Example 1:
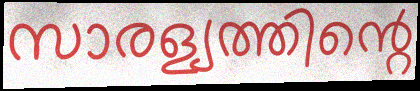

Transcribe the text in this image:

സാരള്യത്തിന്റെ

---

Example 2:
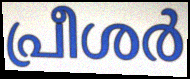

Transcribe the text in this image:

പ്രീശർ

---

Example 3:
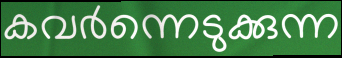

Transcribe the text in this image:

കവർന്നെടുക്കുന്ന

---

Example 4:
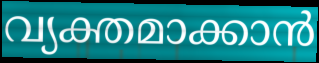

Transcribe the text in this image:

വ്യക്തമാക്കാൻ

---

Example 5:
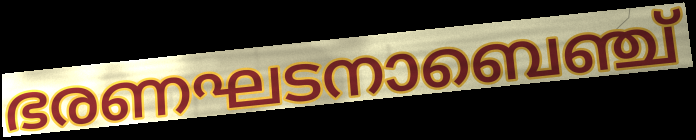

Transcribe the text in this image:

ഭരണഘടനാബെഞ്ച്